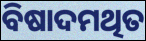
ବିଷାଦମଥିତ